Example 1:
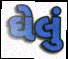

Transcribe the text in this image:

ઘેલું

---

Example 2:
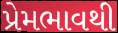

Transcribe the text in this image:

પ્રેમભાવથી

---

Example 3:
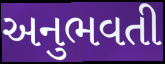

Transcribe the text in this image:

અનુભવતી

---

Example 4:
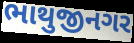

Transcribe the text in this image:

ભાથુજીનગર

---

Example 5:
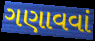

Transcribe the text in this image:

ગણાવવાં